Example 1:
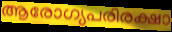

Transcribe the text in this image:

ആരോഗ്യപരിരക്ഷാ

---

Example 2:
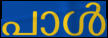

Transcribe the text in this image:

പാൾ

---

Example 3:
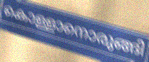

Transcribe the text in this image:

കൊള്ളാനൊരുങ്ങി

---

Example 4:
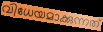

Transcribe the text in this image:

വിധേയമാക്കുന്നത്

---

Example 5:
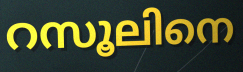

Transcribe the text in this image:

റസൂലിനെ